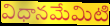
విధానమేమిటి